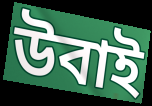
উবাই